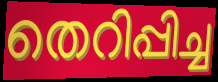
തെറിപ്പിച്ച